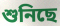
শুনিছে